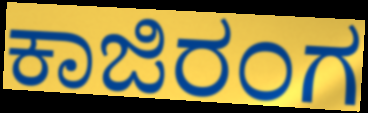
ಕಾಜಿರಂಗ